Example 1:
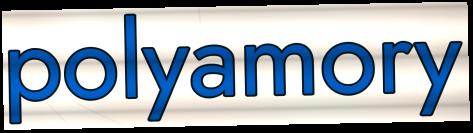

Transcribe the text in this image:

polyamory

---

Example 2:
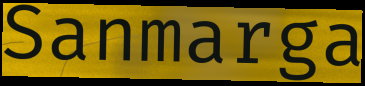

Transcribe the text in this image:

Sanmarga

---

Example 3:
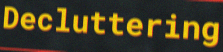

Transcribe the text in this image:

Decluttering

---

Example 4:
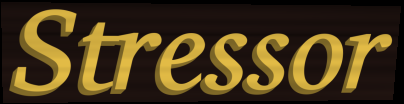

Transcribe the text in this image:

Stressor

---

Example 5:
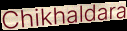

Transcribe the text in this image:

Chikhaldara